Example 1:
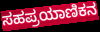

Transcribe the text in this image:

ಸಹಪ್ರಯಾಣಿಕನ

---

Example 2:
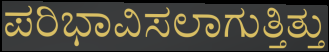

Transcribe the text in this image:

ಪರಿಭಾವಿಸಲಾಗುತ್ತಿತ್ತು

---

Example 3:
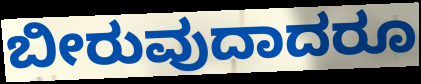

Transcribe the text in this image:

ಬೀರುವುದಾದರೂ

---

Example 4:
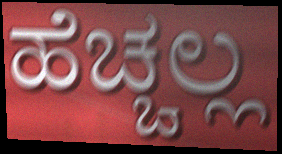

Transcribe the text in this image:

ಹೆಚ್ಚಲ್ಲ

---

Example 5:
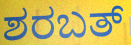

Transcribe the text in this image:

ಶರಬತ್